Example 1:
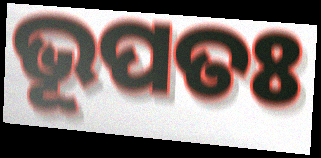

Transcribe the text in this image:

ଭୂପତଃ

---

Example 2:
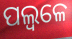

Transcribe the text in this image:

ପଲ୍ୱଳେ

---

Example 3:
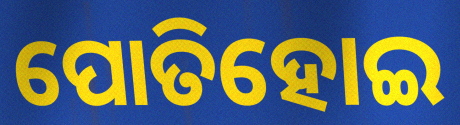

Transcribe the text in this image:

ପୋତିହୋଇ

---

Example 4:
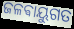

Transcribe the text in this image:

ଜଳଵାୟୁଗତ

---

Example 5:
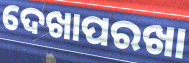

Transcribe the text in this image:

ଦେଖାପରଖା